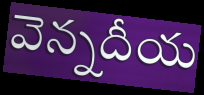
వెన్నదీయ